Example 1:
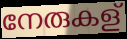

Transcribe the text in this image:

നേരുകള്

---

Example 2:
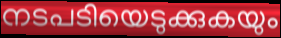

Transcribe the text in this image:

നടപടിയെടുക്കുകയും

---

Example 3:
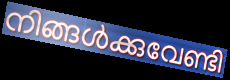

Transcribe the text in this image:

നിങ്ങൾക്കുവേണ്ടി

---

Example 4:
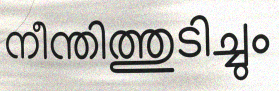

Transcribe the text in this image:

നീന്തിത്തുടിച്ചും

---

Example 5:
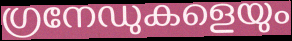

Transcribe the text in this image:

ഗ്രനേഡുകളെയും